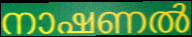
നാഷണൽ